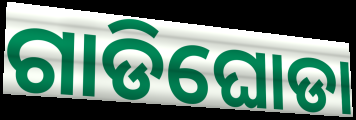
ଗାଡିଘୋଡା